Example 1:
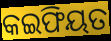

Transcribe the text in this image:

କଇଫିୟତ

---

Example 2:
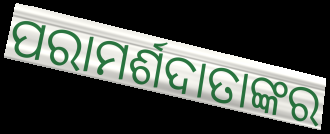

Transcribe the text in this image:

ପରାମର୍ଶଦାତାଙ୍କର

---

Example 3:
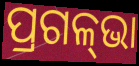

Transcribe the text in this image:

ପ୍ରଗଳ୍‌ଭା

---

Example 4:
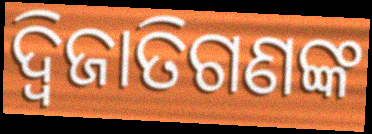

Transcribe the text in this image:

ଦ୍ୱିଜାତିଗଣଙ୍କ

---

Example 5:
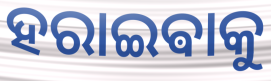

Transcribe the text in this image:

ହରାଇଵାକୁ